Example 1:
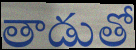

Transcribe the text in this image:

తాడుతో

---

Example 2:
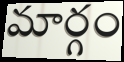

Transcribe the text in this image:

మార్గం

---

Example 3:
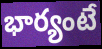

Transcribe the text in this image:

భార్యంటే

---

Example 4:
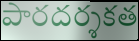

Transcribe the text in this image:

పారదర్శకత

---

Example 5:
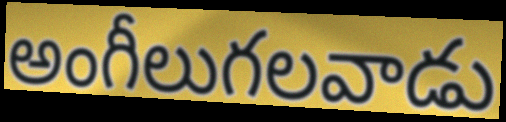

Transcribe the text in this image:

అంగీలుగలవాడు